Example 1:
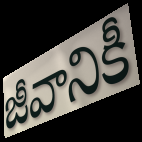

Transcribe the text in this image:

జీవానికీ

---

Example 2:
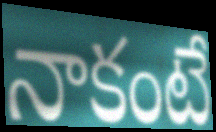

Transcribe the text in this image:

నాకంటే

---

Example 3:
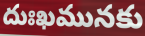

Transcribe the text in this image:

దుఃఖమునకు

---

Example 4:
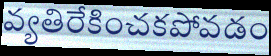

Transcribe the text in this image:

వ్యతిరేకించకపోవడం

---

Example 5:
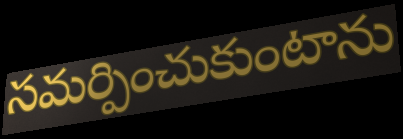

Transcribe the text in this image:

సమర్పించుకుంటాను